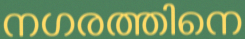
നഗരത്തിനെ